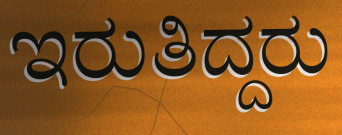
ಇರುತಿದ್ದರು